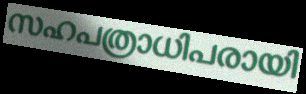
സഹപത്രാധിപരായി